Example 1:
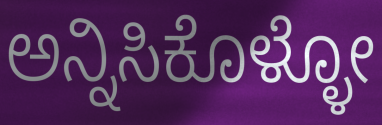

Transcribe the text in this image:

ಅನ್ನಿಸಿಕೊಳ್ಳೋ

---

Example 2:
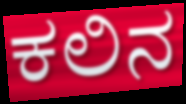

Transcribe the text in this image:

ಕಲಿನ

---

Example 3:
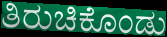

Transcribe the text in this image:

ತಿರುಚಿಕೊಂಡು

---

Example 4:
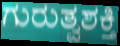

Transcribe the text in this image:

ಗುರುತ್ವಶಕ್ತಿ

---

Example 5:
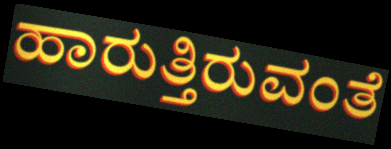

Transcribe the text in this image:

ಹಾರುತ್ತಿರುವಂತೆ